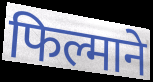
फिल्माने